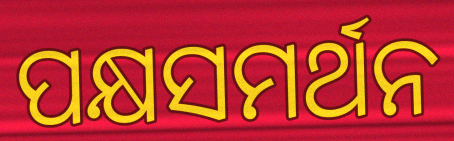
ପକ୍ଷସମର୍ଥନ